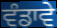
ਵੰਡਾਵੇ